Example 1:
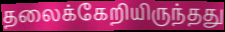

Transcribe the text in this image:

தலைக்கேறியிருந்தது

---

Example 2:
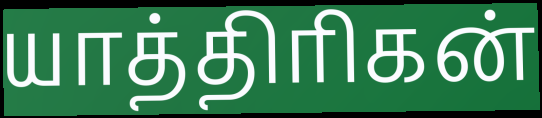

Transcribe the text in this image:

யாத்திரிகன்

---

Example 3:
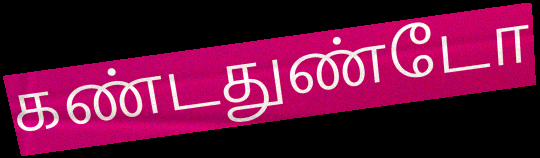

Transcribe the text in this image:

கண்டதுண்டோ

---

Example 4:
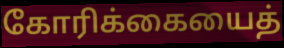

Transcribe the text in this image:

கோரிக்கையைத்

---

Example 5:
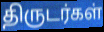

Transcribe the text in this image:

திருடர்கள்